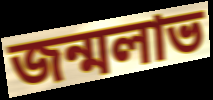
জন্মলাভ